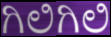
ಗಿಲಿಗಿಲಿ